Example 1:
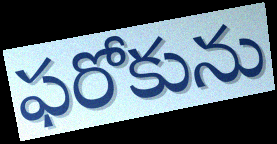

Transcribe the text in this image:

ఫరోకును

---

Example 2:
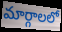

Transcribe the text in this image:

మార్గాలలో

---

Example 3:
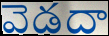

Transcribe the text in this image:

వెడదా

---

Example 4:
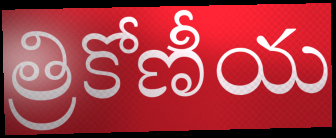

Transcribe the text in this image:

త్రికోణీయ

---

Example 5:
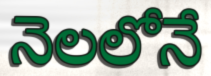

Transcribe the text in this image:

నెలలోనే